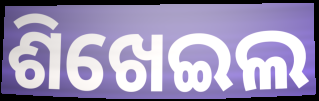
ଶିଖେଇଲ